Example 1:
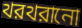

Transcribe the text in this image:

থরথরানো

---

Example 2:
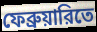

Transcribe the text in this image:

ফেব্রুয়ারিতে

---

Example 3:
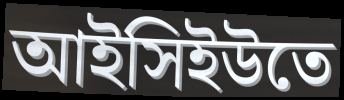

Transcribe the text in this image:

আইসিইউতে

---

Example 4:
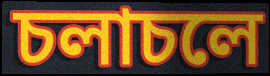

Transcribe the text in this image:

চলাচলে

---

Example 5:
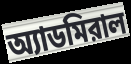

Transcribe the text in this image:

অ্যাডমিরাল